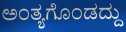
ಅಂತ್ಯಗೊಂಡದ್ದು